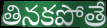
తినకపోతే